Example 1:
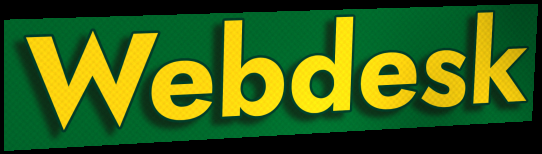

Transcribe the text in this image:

Webdesk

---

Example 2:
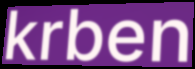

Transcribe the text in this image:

krben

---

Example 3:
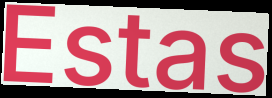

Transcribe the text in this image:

Estas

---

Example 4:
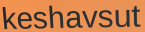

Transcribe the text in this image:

keshavsut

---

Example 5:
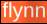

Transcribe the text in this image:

flynn